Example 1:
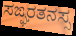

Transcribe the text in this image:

ಸಙ್ಘರತನಸ್ಸ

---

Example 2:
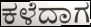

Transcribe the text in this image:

ಕಳೆದಾಗ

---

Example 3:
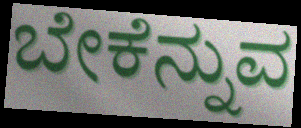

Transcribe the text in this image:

ಬೇಕೆನ್ನುವ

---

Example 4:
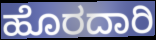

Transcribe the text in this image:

ಹೊರದಾರಿ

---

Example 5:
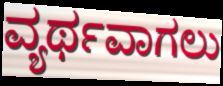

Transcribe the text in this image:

ವ್ಯರ್ಥವಾಗಲು